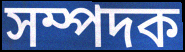
সম্পদক